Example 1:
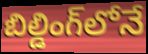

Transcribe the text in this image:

బిల్డింగ్‌లోనే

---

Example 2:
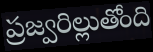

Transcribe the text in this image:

ప్రజ్వరిల్లుతోంది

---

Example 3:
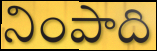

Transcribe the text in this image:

నింపాది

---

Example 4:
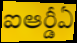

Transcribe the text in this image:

ఐఆర్డీఏ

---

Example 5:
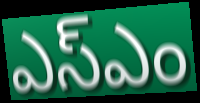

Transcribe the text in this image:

ఎస్ఎం